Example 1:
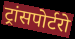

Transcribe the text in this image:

ट्रांसपोर्टरो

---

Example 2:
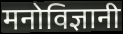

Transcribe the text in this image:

मनोविज्ञानी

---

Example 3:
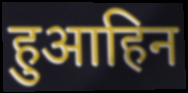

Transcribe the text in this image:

हुआहिन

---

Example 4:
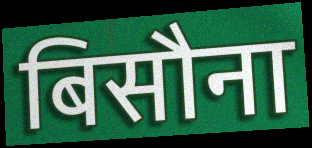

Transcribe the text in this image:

बिसौना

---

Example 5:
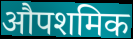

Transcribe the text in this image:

औपशमिक